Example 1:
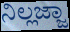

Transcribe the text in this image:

ನಿಲ್ಲಜ್ಜಾ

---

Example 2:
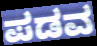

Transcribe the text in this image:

ಪಡವ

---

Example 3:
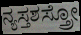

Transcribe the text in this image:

ನ್ಯಸ್ತಶಸ್ತ್ರೋ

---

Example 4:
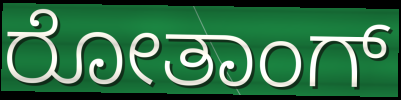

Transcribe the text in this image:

ರೋತಾಂಗ್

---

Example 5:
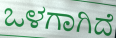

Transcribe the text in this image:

ಒಳಗಾಗಿದೆ